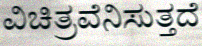
ವಿಚಿತ್ರವೆನಿಸುತ್ತದೆ